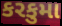
કરકુમા